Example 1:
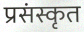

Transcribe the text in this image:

प्रसंस्कृत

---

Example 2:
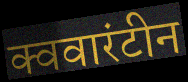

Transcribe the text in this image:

क्ववारंटीन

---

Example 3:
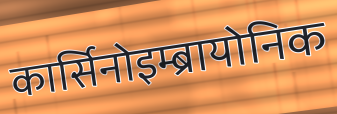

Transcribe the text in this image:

कार्सिनोइम्ब्रायोनिक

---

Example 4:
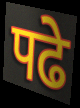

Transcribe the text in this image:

पढे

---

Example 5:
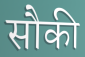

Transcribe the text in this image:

सौकी